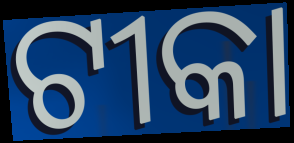
ଟୀକା